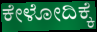
ಕೇಳೋದಿಕ್ಕೆ